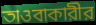
তাওবাকারীর